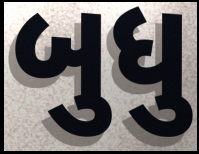
બુધુ